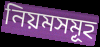
নিয়মসমূহ